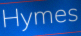
Hymes